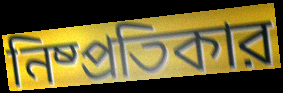
নিষ্প্রতিকার